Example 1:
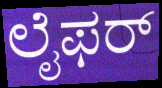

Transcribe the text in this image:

ಲೈಫರ್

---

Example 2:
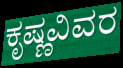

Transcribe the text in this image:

ಕೃಷ್ಣವಿವರ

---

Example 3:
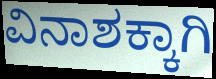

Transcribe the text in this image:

ವಿನಾಶಕ್ಕಾಗಿ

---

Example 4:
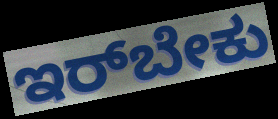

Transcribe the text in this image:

ಇರ್‌ಬೇಕು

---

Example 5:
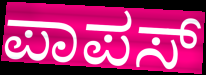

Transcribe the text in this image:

ಪಾಪಸ್